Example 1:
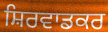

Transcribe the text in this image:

ਸ਼ਿਰਵਾਡਕਰ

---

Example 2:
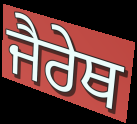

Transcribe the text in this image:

ਜੈਰੇਥ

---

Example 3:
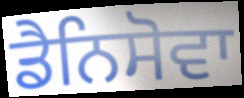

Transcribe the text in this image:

ਡੈਨਿਸੋਵਾ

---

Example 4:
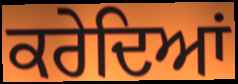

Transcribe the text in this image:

ਕਰੇਦਿਆਂ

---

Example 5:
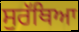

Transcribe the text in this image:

ਸੁਰੱਥਿਆ